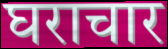
घराचार